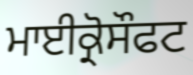
ਮਾਈਕ੍ਰੋਸੌਫਟ